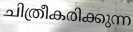
ചിത്രീകരിക്കുന്ന